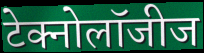
टेक्नोलॉजीज